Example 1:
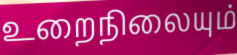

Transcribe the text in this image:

உறைநிலையும்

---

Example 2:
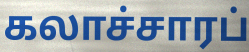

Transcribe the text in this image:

கலாச்சாரப்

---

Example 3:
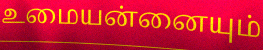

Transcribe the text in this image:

உமையன்னையும்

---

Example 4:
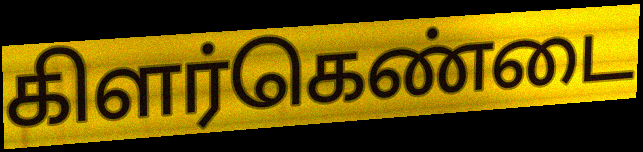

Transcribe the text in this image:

கிளர்கெண்டை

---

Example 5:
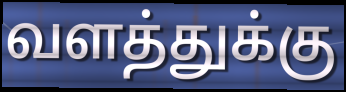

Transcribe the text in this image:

வளத்துக்கு